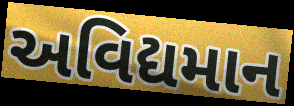
અવિદ્યમાન